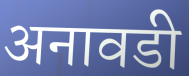
अनावडी